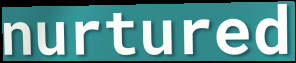
nurtured